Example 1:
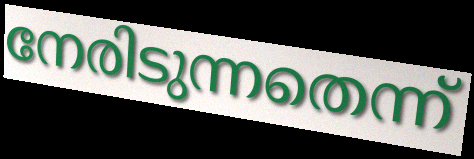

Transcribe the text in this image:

നേരിടുന്നതെന്ന്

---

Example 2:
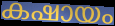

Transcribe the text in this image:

കഷായം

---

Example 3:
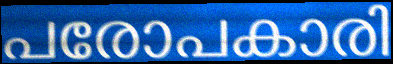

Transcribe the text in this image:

പരോപകാരി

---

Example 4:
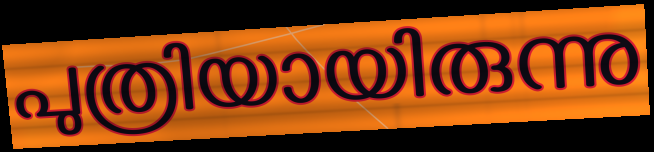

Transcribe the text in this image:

പുത്രിയായിരുന്നു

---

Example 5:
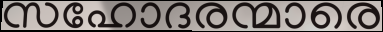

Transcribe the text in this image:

സഹോദരന്മാരെ